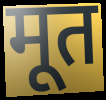
मूत